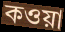
কওয়া